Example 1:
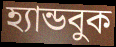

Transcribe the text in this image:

হ্যান্ডবুক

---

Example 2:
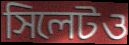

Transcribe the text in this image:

সিলেটও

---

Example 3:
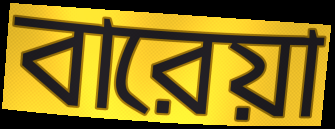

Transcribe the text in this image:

বারেয়া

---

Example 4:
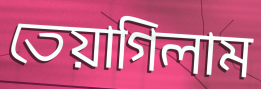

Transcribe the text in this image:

তেয়াগিলাম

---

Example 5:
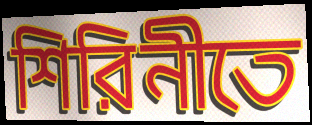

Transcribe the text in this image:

শিরিনীতে